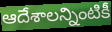
ఆదేశాలన్నింటికీ